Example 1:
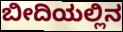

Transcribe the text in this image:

ಬೀದಿಯಲ್ಲಿನ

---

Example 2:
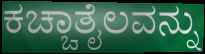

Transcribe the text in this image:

ಕಚ್ಚಾತೈಲವನ್ನು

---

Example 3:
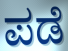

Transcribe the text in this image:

ಪಡೆ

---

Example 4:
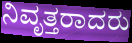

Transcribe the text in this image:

ನಿವೃತ್ತರಾದರು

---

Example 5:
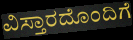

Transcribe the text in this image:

ವಿಸ್ತಾರದೊಂದಿಗೆ